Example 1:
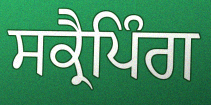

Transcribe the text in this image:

ਸਕ੍ਰੈਪਿੰਗ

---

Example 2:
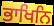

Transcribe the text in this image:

ਭਾਖਿਨਿ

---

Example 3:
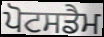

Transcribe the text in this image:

ਪੋਟਸਡੈਮ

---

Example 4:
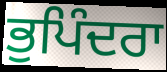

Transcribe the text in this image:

ਭੁਪਿੰਦਰਾ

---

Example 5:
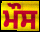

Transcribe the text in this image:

ਮੌਸ